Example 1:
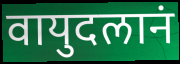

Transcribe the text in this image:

वायुदलानं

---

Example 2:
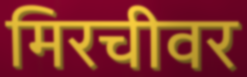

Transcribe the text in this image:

मिरचीवर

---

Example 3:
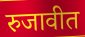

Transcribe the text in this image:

रुजावीत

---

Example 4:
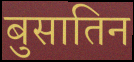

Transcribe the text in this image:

बुसातिन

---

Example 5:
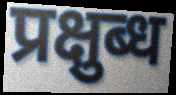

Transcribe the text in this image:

प्रक्षुब्ध